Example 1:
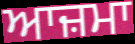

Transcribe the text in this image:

ਆਜ਼ਮਾ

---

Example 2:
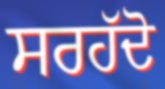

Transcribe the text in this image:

ਸਰਹੱਦੋ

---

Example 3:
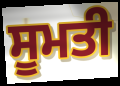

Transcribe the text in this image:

ਸੂਮਤੀ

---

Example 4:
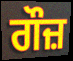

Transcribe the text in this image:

ਗੌਜ਼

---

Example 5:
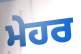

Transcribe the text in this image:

ਮੇਹਰ